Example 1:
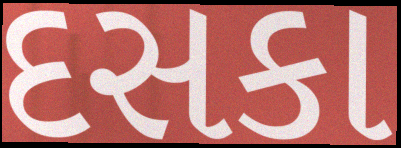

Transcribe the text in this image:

દસકા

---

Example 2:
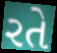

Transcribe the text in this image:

રતે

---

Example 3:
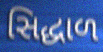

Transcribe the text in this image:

સિદ્ધાળ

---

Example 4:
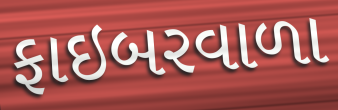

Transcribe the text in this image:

ફાઇબરવાળા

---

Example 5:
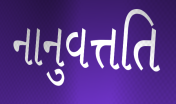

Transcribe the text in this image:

નાનુવત્તતિ